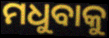
ମଧୁବାକୁ